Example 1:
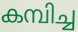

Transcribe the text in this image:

കമ്പിച്ച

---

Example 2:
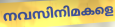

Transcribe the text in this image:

നവസിനിമകളെ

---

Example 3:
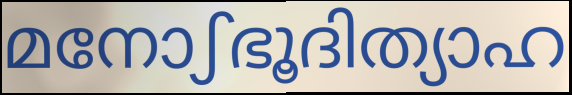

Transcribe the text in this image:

മനോഽഭൂദിത്യാഹ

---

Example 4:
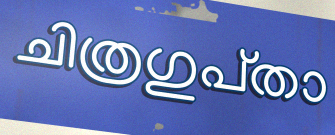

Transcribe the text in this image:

ചിത്രഗുപ്‌താ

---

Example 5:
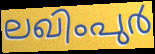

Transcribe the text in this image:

ലഖിംപുർ